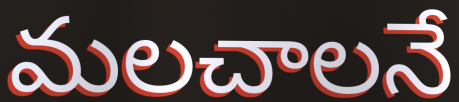
మలచాలనే